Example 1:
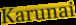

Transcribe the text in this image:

Karunai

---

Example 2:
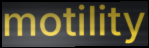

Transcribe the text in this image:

motility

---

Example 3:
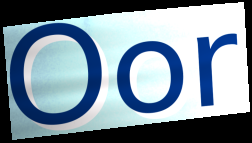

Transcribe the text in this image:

Oor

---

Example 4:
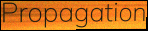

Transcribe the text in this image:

Propagation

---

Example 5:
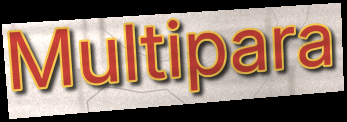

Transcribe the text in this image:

Multipara